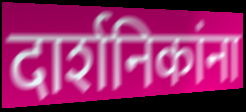
दार्शनिकांना